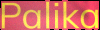
Palika